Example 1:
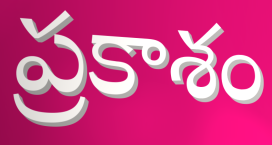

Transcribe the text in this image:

ప్రకాశం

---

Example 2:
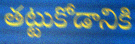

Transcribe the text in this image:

తట్టుకోడానికి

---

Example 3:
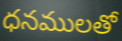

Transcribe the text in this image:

ధనములతో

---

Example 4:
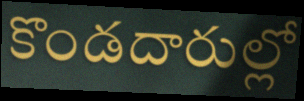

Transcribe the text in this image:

కొండదారుల్లో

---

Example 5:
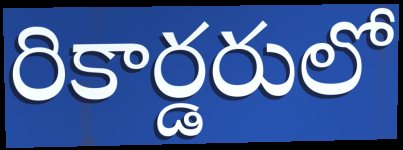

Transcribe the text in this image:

రికార్డరులో